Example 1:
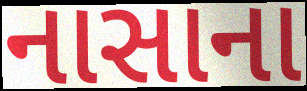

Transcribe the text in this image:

નાસાના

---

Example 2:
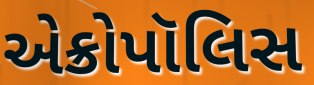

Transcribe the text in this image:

એક્રોપૉલિસ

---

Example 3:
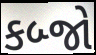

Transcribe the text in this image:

કબ્જો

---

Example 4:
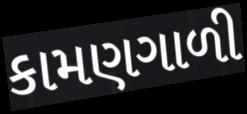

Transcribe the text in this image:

કામણગાળી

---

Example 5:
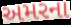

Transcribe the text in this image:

અમરના